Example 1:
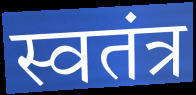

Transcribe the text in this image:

स्वतंत्र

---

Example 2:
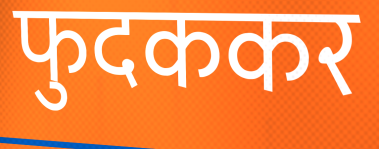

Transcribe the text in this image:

फुदककर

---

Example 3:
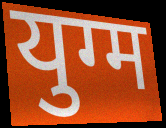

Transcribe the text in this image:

युग्म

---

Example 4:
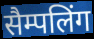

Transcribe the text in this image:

सैम्पलिंग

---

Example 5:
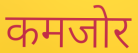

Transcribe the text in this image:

कमजोर